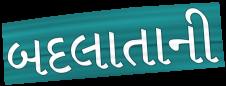
બદલાતાની